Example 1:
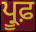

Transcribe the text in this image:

ਪ੍ਰੂਫ਼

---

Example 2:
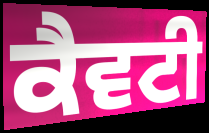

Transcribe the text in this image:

ਕੈਵਟੀ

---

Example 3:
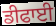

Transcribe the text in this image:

ਡੀਫਾਈ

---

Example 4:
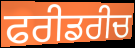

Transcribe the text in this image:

ਫਰੀਡਰੀਚ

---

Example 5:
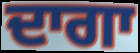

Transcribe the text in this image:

ਦਾਗਾ